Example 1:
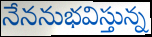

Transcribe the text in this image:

నేననుభవిస్తున్న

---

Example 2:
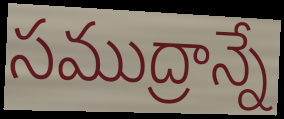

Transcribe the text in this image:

సముద్రాన్నే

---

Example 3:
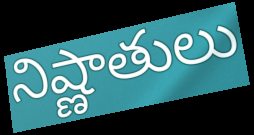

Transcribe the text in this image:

నిష్ణాతులు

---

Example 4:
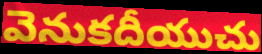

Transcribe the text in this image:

వెనుకదీయుచు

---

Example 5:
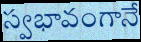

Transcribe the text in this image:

స్వభావంగానే